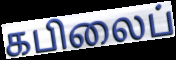
கபிலைப்